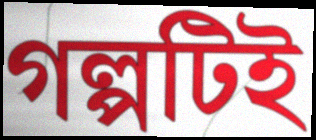
গল্পটিই